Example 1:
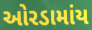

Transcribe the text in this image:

ઓરડામાંય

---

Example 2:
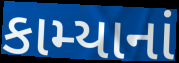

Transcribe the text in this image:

કામ્યાનાં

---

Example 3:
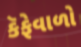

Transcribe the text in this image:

કૅફેવાળો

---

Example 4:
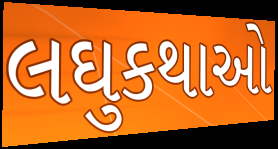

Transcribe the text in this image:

લઘુકથાઓ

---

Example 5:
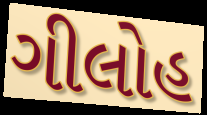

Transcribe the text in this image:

ગીલોહ